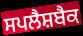
ਸਪਲੈਸ਼ਬੈਕ